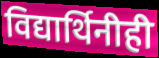
विद्यार्थिनीही